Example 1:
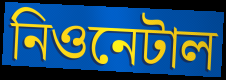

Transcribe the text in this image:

নিওনেটাল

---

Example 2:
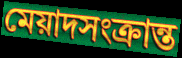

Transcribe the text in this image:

মেয়াদসংক্রান্ত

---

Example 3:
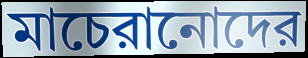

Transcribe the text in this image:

মাচেরানোদের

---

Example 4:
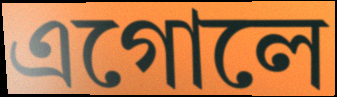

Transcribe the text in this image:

এগোলে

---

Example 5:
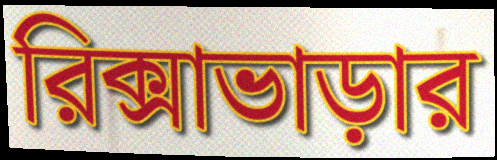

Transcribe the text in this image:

রিক্সাভাড়ার